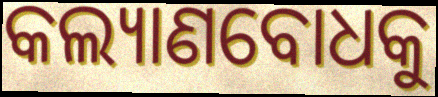
କଲ୍ୟାଣବୋଧକୁ